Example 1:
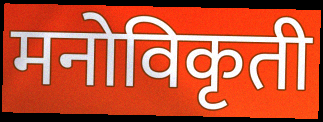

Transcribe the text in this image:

मनोविकृती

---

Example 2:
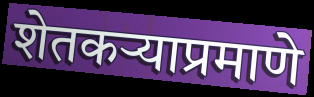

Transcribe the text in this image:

शेतकऱ्याप्रमाणे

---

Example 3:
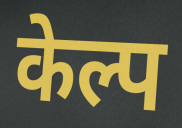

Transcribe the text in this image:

केल्प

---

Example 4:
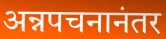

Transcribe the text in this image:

अन्नपचनानंतर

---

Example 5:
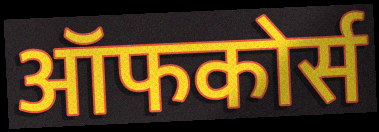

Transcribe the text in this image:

ऑफकोर्स